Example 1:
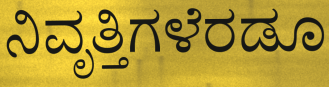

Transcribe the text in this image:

ನಿವೃತ್ತಿಗಳೆರಡೂ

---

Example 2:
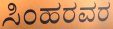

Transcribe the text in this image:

ಸಿಂಹರವರ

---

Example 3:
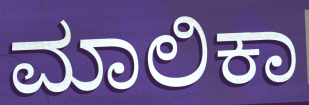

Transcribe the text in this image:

ಮಾಲಿಕಾ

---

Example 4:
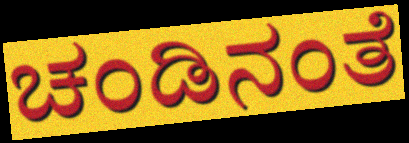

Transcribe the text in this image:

ಚಂಡಿನಂತೆ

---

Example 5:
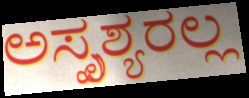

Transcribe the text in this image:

ಅಸ್ಪೃಶ್ಯರಲ್ಲ